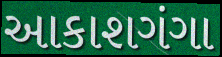
આકાશગંગા